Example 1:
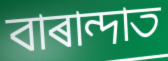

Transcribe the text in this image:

বাৰান্দাত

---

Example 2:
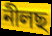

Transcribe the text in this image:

নীলছ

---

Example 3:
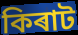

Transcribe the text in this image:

কিৰাট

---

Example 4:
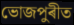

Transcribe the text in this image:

ভোজপুৰীত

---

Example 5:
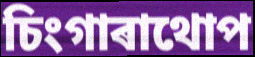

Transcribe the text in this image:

চিংগাৰাথোপ